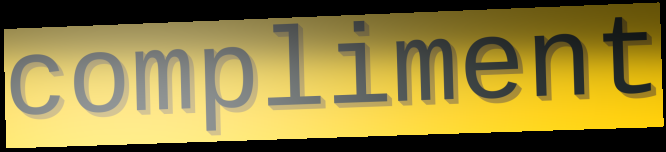
compliment